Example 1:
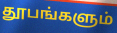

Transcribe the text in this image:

தூபங்களும்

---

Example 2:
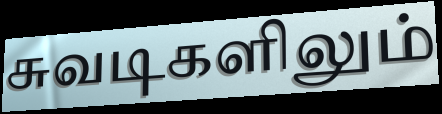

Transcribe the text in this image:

சுவடிகளிலும்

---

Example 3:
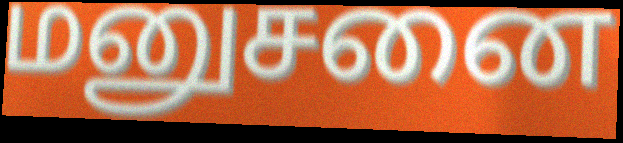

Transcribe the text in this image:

மனுசனை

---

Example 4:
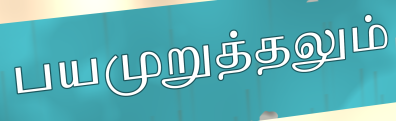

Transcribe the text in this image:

பயமுறுத்தலும்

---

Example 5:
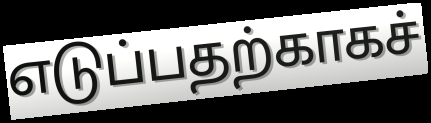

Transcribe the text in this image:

எடுப்பதற்காகச்